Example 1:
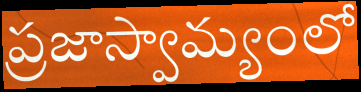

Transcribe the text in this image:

ప్రజాస్వామ్యంలో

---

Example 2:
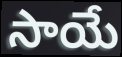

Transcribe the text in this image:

సాయే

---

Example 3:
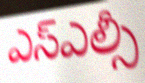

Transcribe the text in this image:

ఎస్ఎల్సీ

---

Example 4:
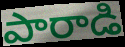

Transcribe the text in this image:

పారాడి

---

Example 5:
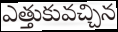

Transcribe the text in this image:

ఎత్తుకువచ్చిన